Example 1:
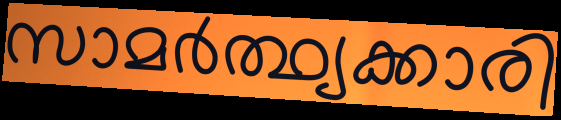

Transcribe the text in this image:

സാമർത്ഥ്യക്കാരി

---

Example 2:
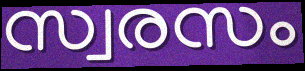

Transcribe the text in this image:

സ്വരസം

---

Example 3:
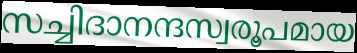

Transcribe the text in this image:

സച്ചിദാനന്ദസ്വരൂപമായ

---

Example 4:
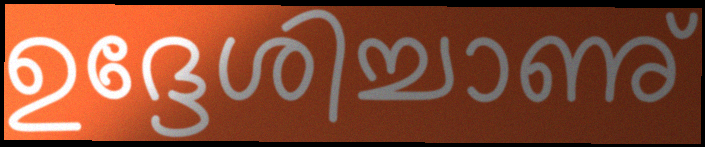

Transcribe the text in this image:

ഉദ്ദേശിച്ചാണു്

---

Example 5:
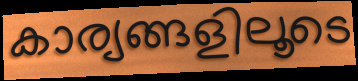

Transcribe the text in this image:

കാര്യങ്ങളിലൂടെ